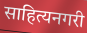
साहित्यनगरी